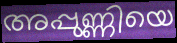
അപ്പുണ്ണിയെ